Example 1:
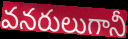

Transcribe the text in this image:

వనరులుగానీ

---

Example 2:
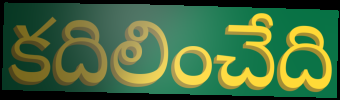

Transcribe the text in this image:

కదిలించేది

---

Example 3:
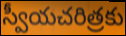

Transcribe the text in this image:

స్వీయచరిత్రకు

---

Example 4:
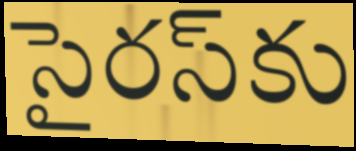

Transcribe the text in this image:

సైరస్‌కు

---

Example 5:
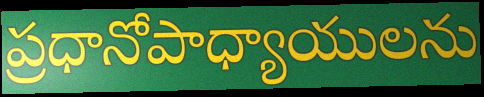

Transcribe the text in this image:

ప్రధానోపాధ్యాయులను